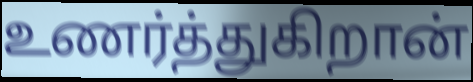
உணர்த்துகிறான்